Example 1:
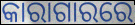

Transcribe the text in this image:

କାରାଗାରରେ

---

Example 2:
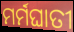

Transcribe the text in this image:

ମର୍ମଘାତୀ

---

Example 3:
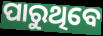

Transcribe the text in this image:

ପାରୁଥିବେ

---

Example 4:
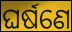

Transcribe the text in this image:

ଘର୍ଷଣେ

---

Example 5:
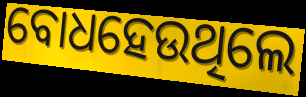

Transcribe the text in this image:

ବୋଧହେଉଥିଲେ